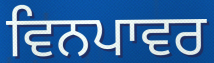
ਵਿਨਪਾਵਰ